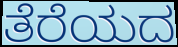
ತೆರೆಯದ